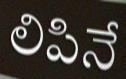
లిపినే